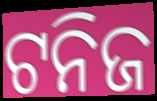
ଟନିଜ